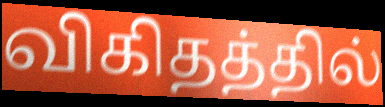
விகிதத்தில்